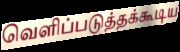
வெளிப்படுத்தக்கூடிய